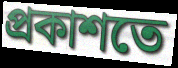
প্রকাশতে